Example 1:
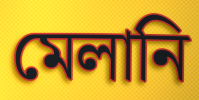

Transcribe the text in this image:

মেলানি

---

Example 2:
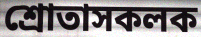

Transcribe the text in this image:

শ্ৰোতাসকলক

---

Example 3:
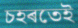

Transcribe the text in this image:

চহৰতেই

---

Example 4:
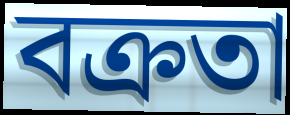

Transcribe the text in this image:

বক্ৰতা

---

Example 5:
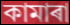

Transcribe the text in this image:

কামাৰা